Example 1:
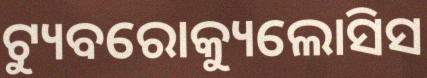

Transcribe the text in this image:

ଟ୍ୟୁବରୋକ୍ୟୁଲୋସିସ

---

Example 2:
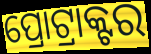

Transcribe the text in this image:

ପ୍ରୋଟ୍ରାକ୍ଟର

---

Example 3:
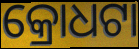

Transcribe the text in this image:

କ୍ରୋଧଟା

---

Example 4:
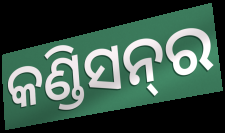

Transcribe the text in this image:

କଣ୍ଡିସନ୍‌ର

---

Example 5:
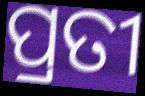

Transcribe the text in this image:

ପ୍ରତୀ